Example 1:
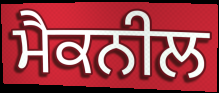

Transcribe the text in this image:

ਮੈਕਨੀਲ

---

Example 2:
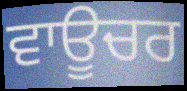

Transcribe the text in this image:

ਵਾਊਚਰ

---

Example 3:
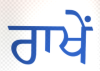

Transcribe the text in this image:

ਰਾਖੇਂ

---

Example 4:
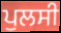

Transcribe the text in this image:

ਪੁਲਸੀ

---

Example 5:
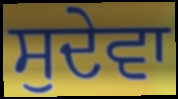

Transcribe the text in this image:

ਸੁਦੇਵਾ